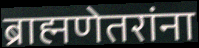
ब्राह्मणेतरांना